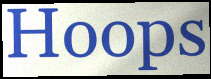
Hoops